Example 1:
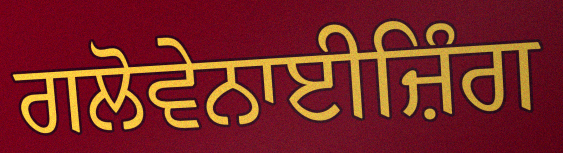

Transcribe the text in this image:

ਗਲੋਵੇਨਾਈਜ਼ਿੰਗ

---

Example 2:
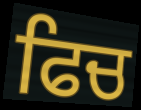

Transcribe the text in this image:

ਫਿਚ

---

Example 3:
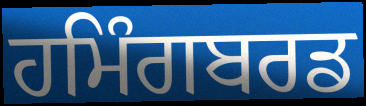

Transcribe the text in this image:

ਹਮਿੰਗਬਰਡ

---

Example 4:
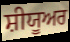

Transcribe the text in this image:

ਸ਼ੀਯੂਅਰ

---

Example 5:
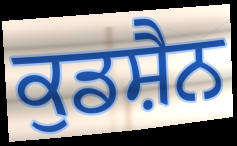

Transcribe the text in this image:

ਕੁਡਸ਼ੈਨ